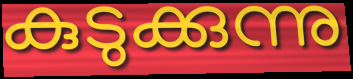
കുടുക്കുന്നു